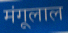
मंगूलाल